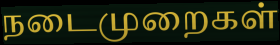
நடைமுறைகள்